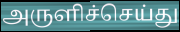
அருளிச்செய்து